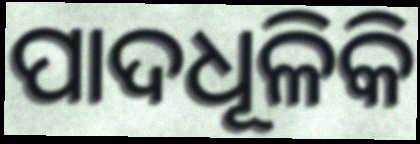
ପାଦଧୂଳିକି